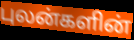
புலன்களின்